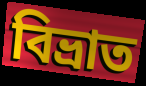
বিভ্ৰাত